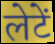
लेटें